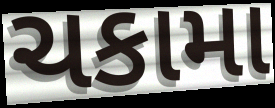
ચકામા